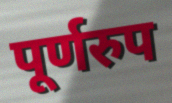
पूर्णरुप